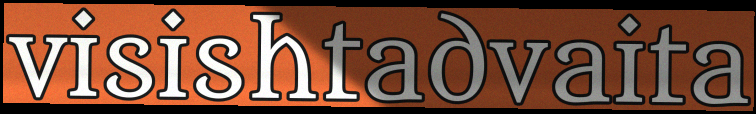
visishtadvaita